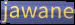
jawane